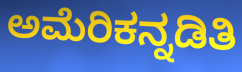
ಅಮೆರಿಕನ್ನಡಿತಿ